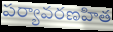
పర్యావరణహిత